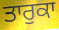
ਤਾਰੁਕਾ